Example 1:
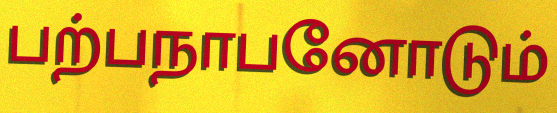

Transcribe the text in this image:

பற்பநாபனோடும்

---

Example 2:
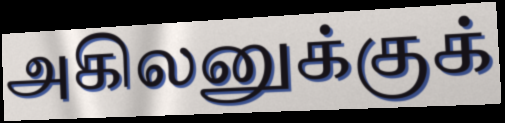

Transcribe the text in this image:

அகிலனுக்குக்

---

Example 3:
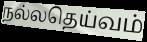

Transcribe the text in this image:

நல்லதெய்வம்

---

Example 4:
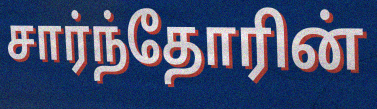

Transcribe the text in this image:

சார்ந்தோரின்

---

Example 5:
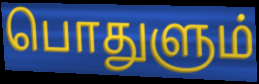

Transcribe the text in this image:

பொதுளும்